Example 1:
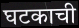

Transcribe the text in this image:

घटकाची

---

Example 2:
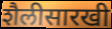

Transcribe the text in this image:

शैलीसारखी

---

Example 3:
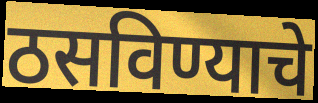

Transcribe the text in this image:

ठसविण्याचे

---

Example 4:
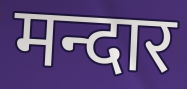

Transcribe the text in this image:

मन्दार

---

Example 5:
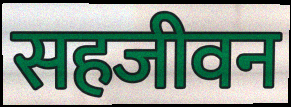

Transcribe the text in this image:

सहजीवन